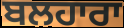
ਬਲਹਾਰਾ